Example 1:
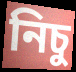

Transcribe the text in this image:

নিচু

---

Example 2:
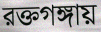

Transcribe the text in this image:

রক্তগঙ্গায়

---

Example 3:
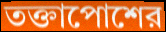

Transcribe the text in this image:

তক্তাপোশের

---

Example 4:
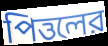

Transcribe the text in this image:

পিত্তলের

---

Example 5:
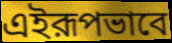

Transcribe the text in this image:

এইরূপভাবে